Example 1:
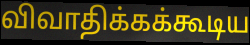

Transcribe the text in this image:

விவாதிக்கக்கூடிய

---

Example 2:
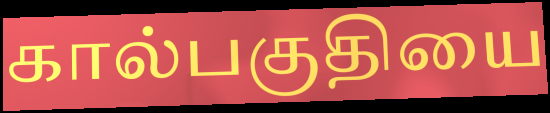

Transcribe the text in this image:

கால்பகுதியை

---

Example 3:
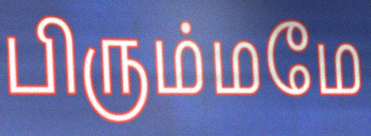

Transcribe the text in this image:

பிரும்மமே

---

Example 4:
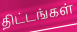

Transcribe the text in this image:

திட்டங்கள்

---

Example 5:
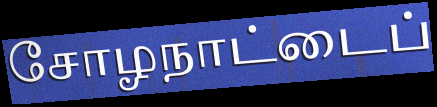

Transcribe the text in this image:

சோழநாட்டைப்